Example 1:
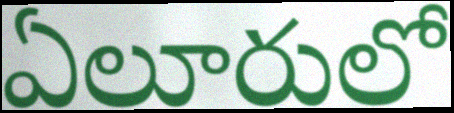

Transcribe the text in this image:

ఏలూరులో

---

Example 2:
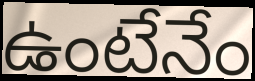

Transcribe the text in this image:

ఉంటేనేం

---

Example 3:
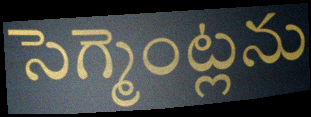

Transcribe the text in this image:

సెగ్మెంట్లను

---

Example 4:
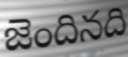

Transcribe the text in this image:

జెందినది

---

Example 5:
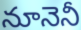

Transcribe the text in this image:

నూనెనీ